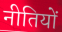
नीतियों